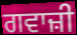
ਗਵਾਜ਼ੀ